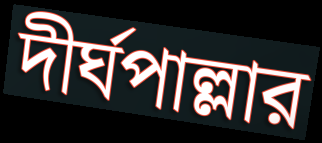
দীর্ঘপাল্লার